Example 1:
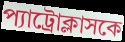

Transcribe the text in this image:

প্যাট্রোক্লাসকে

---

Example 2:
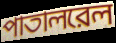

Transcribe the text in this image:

পাতালরেল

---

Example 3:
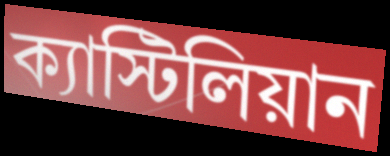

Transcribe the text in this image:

ক্যাস্টিলিয়ান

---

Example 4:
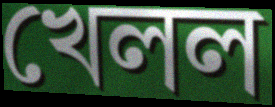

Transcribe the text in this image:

খেলল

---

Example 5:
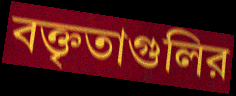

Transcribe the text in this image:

বক্তৃতাগুলির